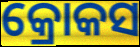
କ୍ରୋକସ